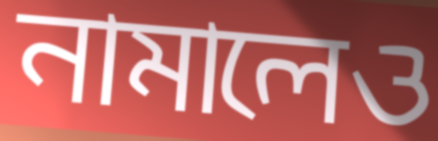
নামালেও